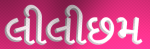
લીલીછમ